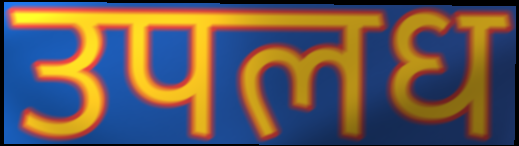
उपलध